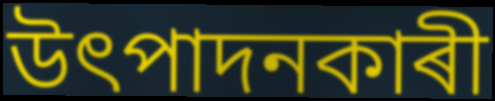
উৎপাদনকাৰী